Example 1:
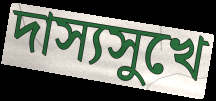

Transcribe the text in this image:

দাস্যসুখে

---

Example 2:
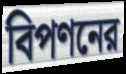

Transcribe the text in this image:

বিপণনের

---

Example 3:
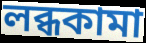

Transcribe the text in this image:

লব্ধকামা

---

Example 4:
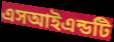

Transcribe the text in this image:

এসআইএন্ডটি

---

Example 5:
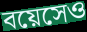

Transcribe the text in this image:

বয়েসেও